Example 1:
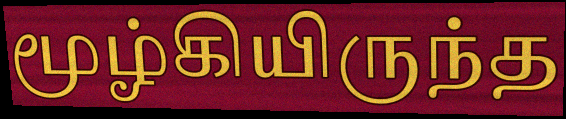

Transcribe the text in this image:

மூழ்கியிருந்த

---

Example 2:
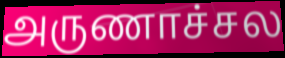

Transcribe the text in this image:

அருணாச்சல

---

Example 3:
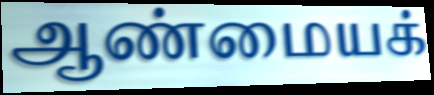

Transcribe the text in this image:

ஆண்மையக்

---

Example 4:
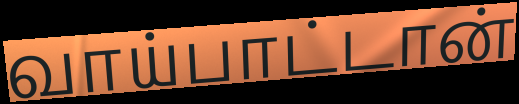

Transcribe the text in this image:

வாய்பாட்டான்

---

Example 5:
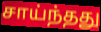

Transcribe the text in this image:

சாய்ந்தது